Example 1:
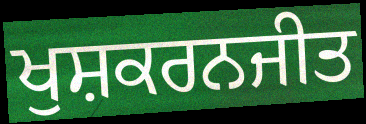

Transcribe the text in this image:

ਖੁਸ਼ਕਰਨਜੀਤ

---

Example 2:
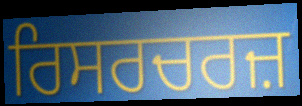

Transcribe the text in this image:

ਰਿਸਰਚਰਜ਼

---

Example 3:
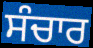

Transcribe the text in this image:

ਸੰਚਾਰ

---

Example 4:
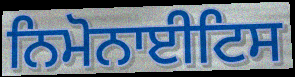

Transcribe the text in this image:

ਨਿਮੋਨਾਈਟਿਸ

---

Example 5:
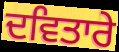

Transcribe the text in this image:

ਦਵਿਤਾਰੇ